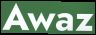
Awaz